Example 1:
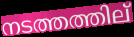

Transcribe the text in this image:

നടത്തത്തില്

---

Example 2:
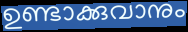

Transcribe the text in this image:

ഉണ്ടാക്കുവാനും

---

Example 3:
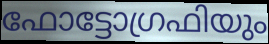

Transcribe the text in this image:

ഫോട്ടോഗ്രഫിയും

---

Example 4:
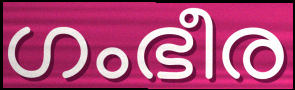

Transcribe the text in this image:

ഗംഭീര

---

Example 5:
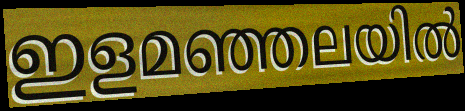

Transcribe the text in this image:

ഇളമഞ്ഞലയിൽ